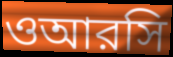
ওআরসি